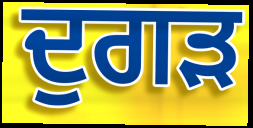
ਦੁਗੜ